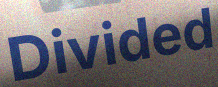
Divided